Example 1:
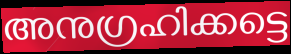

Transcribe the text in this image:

അനുഗ്രഹിക്കട്ടെ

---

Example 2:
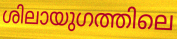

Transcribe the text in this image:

ശിലായുഗത്തിലെ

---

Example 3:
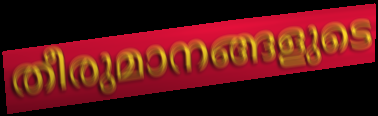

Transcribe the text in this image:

തീരുമാനങ്ങളുടെ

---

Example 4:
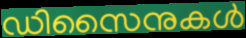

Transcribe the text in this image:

ഡിസൈനുകൾ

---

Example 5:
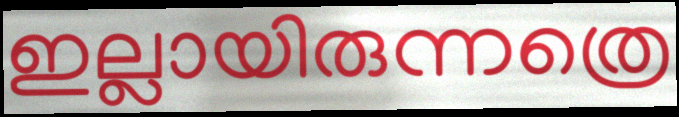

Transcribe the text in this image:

ഇല്ലായിരുന്നത്രെ